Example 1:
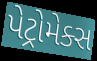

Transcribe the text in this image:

પેટ્રોમેક્સ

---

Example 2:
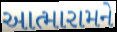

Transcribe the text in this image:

આત્મારામને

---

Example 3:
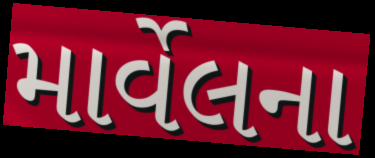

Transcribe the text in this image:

માર્વેલના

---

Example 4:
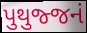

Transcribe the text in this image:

પુથુજ્જનં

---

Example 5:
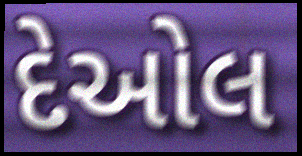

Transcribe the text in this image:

દેઓલ